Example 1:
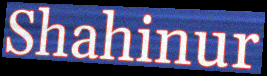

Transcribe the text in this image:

Shahinur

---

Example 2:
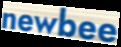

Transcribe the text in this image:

newbee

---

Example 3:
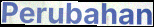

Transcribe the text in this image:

Perubahan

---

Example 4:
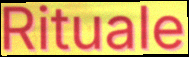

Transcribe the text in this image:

Rituale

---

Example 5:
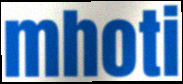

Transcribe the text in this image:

mhoti